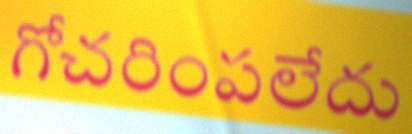
గోచరింపలేదు